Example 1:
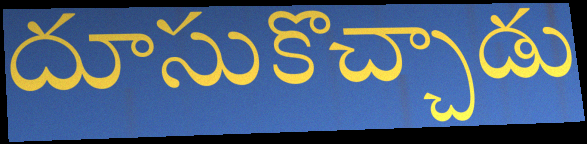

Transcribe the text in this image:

దూసుకొచ్చాడు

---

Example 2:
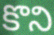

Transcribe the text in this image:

కొని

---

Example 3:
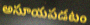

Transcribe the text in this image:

అసూయపడటం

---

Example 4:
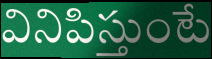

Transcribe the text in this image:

వినిపిస్తుంటే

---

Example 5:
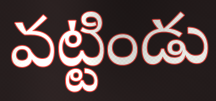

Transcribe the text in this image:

వట్టిండు